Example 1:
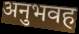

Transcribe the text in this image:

अनुभवह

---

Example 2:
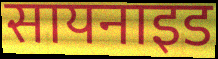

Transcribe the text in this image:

सायनाइड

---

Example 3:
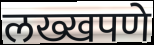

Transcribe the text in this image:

लख्खपणे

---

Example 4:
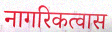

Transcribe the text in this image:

नागरिकत्वास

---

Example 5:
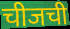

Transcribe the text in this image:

चीजची